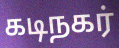
கடிநகர்